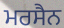
ਮਰਸੈਨ